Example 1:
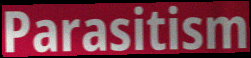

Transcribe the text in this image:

Parasitism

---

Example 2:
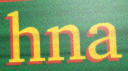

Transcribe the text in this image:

hna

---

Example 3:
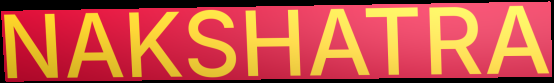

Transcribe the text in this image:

NAKSHATRA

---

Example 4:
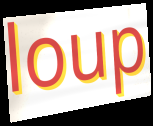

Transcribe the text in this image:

loup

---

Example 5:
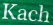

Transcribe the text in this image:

Kach